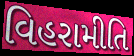
વિહરામીતિ